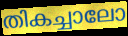
തികച്ചാലോ